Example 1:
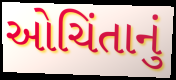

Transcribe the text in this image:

ઓચિંતાનું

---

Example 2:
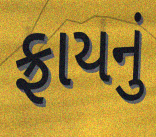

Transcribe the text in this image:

ફ્રાયનું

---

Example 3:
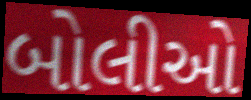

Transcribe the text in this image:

બોલીઓ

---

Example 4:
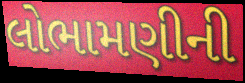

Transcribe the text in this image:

લોભામણીની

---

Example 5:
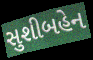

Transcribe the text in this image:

સુશીબહેન